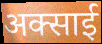
अक्साई